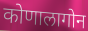
कोणालागोन